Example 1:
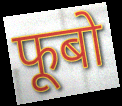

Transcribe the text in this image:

फूबो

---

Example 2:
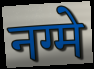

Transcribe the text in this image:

नग्मे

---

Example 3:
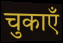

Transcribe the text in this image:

चुकाएँ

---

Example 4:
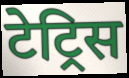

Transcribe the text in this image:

टेट्रिस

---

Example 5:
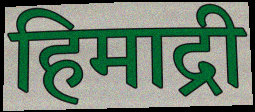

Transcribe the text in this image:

हिमाद्री